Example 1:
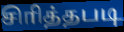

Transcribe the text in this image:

சிரித்தபடி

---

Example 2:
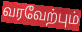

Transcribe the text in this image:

வரவேற்பும்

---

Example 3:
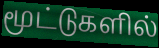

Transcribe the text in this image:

மூட்டுகளில்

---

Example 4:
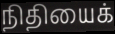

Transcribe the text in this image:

நிதியைக்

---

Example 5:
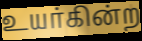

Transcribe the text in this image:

உயர்கின்ற